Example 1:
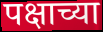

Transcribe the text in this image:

पक्षाच्या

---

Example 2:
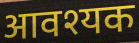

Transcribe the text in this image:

आवश्यक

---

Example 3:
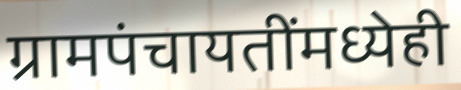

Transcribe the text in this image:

ग्रामपंचायतींमध्येही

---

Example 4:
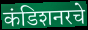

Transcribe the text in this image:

कंडिशनरचे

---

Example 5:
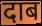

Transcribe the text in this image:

दाब